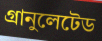
গ্রানুলেটেড